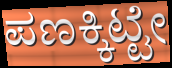
ಪಣಕ್ಕಿಟ್ಟೇ